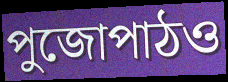
পুজোপাঠও